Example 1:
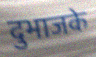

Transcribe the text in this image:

दुभाजके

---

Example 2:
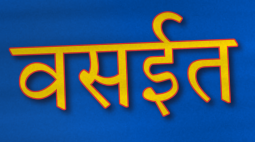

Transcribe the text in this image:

वसईत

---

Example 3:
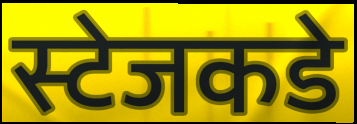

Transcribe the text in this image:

स्टेजकडे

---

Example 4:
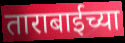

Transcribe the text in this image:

ताराबाईच्या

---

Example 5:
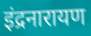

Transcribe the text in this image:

इंद्रनारायण